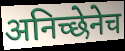
अनिच्छेनेच